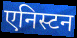
एनिस्टन